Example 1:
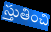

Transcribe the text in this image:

స్తుతించి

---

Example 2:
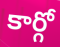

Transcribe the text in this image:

కార్గో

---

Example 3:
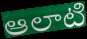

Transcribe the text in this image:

ఆలాటి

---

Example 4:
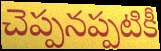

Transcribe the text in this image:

చెప్పనప్పటికీ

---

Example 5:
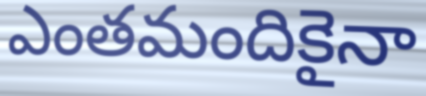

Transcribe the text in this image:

ఎంతమందికైనా